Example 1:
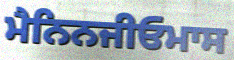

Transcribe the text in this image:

ਮੈਨਿਨਜੀਓਮਾਸ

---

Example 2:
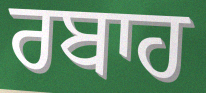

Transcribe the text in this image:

ਰਬਾਹ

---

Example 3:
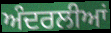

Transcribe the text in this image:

ਅੰਦਰਲੀਆਂ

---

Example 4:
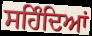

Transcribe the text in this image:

ਸਹਿੰਦਿਆਂ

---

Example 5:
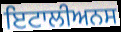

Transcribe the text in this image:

ਇਟਾਲੀਅਨਸ